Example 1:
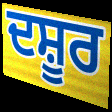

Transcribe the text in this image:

ਦਸ਼ੂਰ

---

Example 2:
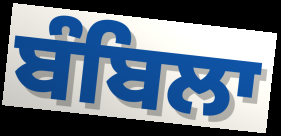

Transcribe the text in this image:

ਬੰਬਿਲਾ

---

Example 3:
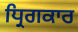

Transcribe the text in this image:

ਧ੍ਰਿਗਕਾਰ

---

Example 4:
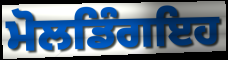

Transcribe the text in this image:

ਮੋਲਡਿੰਗਇਹ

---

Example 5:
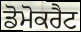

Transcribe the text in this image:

ਡੋਮੋਕਰੈਟ